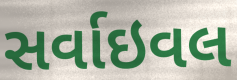
સર્વાઇવલ